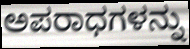
ಅಪರಾಧಗಳನ್ನು